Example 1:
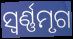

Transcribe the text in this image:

ସ୍ଵର୍ଣ୍ଣମୃଗ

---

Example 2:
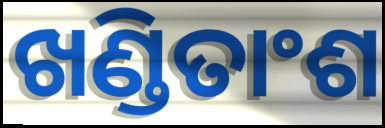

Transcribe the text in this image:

ଖଣ୍ଡିତାଂଶ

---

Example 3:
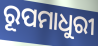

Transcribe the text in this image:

ରୂପମାଧୁରୀ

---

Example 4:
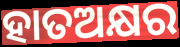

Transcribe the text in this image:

ହାତଅକ୍ଷର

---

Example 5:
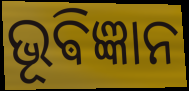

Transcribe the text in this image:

ଭୂଵିଜ୍ଞାନ